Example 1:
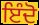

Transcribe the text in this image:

ਇੰਦੋ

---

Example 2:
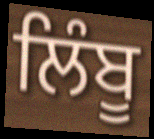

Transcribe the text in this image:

ਲਿੰਬੂ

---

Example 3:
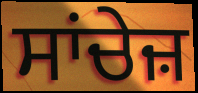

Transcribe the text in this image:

ਸਾਂਚੇਜ਼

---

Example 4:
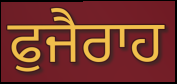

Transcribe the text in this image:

ਫੁਜੈਰਾਹ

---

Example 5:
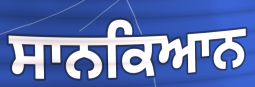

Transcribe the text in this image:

ਸਾਨਕਿਆਨ